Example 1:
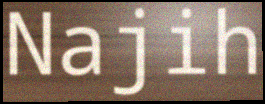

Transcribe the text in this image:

Najih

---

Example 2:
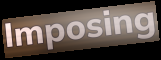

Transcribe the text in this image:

Imposing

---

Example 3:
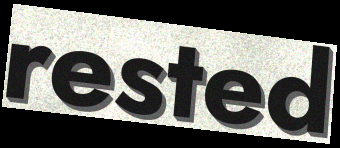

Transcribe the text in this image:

rested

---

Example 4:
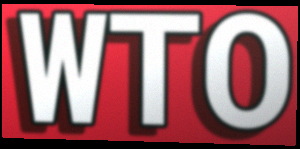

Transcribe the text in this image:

WTO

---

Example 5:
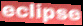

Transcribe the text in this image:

eclipse